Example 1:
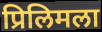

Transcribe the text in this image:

प्रिलिमला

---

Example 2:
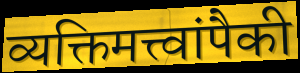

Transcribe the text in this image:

व्यक्तिमत्त्वांपैकी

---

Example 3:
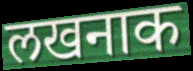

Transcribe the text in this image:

लखनाक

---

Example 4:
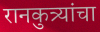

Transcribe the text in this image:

रानकुत्र्यांचा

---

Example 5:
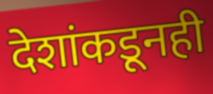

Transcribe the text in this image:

देशांकडूनही